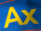
Ax